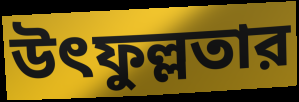
উৎফুল্লতার